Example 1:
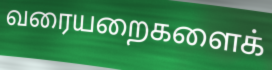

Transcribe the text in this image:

வரையறைகளைக்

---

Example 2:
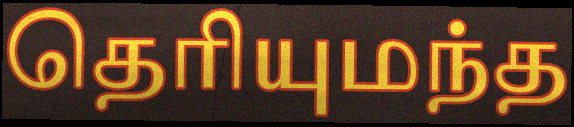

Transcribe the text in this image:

தெரியுமந்த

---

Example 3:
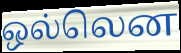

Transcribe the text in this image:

ஒல்லென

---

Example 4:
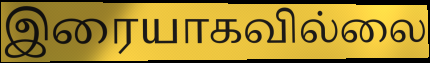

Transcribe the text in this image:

இரையாகவில்லை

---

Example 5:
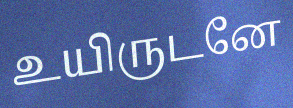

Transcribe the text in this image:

உயிருடனே